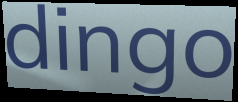
dingo